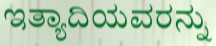
ಇತ್ಯಾದಿಯವರನ್ನು